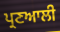
ਪ੍ਰਣਆਲੀ